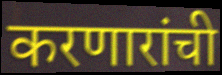
करणारांची